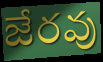
జేరవు